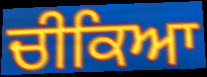
ਚੀਕਿਆ